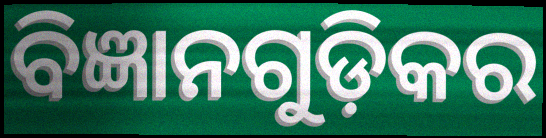
ବିଜ୍ଞାନଗୁଡ଼ିକର